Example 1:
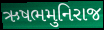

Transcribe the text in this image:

ઋષભમુનિરાજ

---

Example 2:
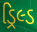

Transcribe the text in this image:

ડ્રિલ્ડ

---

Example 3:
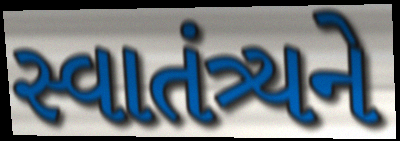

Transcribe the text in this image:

સ્વાતંત્ર્યને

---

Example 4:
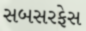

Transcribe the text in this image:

સબસરફેસ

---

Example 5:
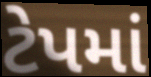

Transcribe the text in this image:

ટેપમાં